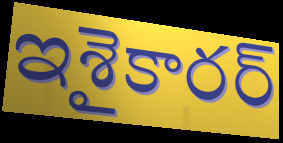
ఇశైకారర్